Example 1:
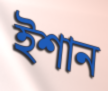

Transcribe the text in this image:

ইশান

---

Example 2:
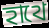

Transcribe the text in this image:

হাথে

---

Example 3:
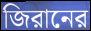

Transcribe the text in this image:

জিরানের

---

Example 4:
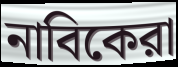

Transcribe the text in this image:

নাবিকেরা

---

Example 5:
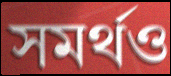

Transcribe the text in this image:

সমর্থও